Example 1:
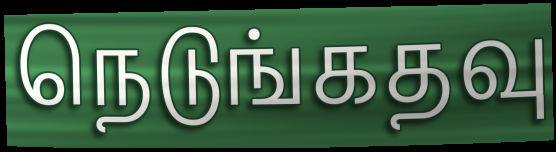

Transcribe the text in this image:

நெடுங்கதவு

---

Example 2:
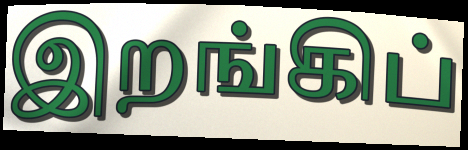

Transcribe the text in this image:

இறங்கிப்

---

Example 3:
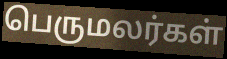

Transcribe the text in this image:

பெருமலர்கள்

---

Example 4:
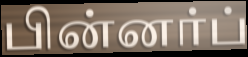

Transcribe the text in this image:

பின்னர்ப்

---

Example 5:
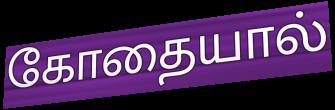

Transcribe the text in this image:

கோதையால்